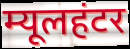
म्यूलहंटर